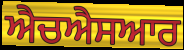
ਐਚਐਸਆਰ